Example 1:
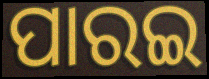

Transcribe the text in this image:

ପାରଇ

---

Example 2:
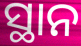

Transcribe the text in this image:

ସ୍ଥାନ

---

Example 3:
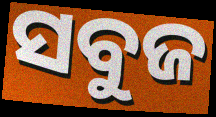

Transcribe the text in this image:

ସବୁଜ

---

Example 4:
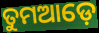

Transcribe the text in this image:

ତୁମଆଡ଼େ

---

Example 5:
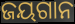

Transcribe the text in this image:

ଜୟଗାନ